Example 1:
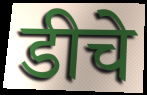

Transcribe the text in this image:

डीचे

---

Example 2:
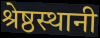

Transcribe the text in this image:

श्रेष्ठस्थानी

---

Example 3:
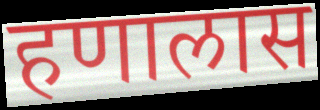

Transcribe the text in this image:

हणालास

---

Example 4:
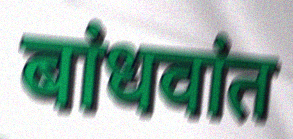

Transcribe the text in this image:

बांधवांत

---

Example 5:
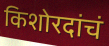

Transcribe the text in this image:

किशोरदांचं